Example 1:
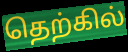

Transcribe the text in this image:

தெற்கில்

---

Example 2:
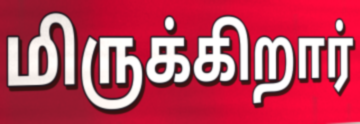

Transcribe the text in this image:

மிருக்கிறார்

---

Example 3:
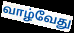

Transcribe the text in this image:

வாழ்வேது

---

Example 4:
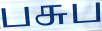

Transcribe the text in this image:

பசுப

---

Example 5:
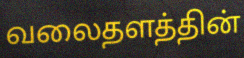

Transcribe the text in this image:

வலைதளத்தின்